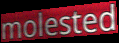
molested